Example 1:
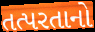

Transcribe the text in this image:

તત્પરતાનો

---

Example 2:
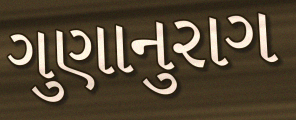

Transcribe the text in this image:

ગુણાનુરાગ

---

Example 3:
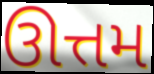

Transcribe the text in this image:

ઊત્તમ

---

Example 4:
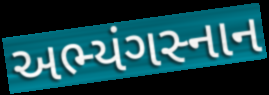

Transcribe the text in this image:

અભ્યંગસ્નાન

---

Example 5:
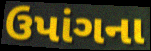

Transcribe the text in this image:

ઉપાંગના